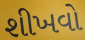
શીખવો